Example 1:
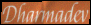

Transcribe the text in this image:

Dharmadev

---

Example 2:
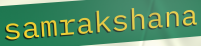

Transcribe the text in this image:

samrakshana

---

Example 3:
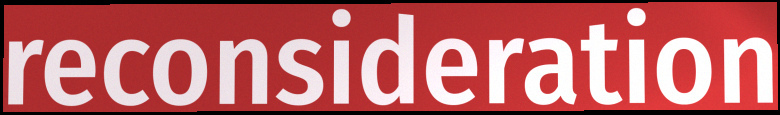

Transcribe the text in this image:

reconsideration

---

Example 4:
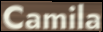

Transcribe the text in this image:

Camila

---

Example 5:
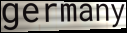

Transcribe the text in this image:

germany